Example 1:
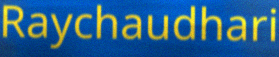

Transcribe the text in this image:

Raychaudhari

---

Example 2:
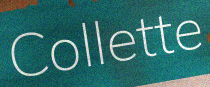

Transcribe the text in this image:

Collette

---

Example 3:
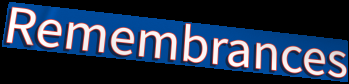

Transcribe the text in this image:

Remembrances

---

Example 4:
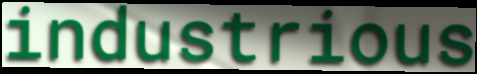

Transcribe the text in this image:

industrious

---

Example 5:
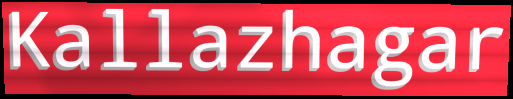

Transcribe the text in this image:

Kallazhagar